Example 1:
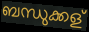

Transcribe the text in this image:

ബന്ധുക്കള്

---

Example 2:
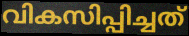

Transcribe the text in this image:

വികസിപ്പിച്ചത്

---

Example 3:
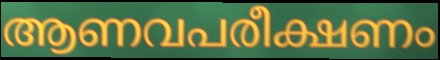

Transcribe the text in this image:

ആണവപരീക്ഷണം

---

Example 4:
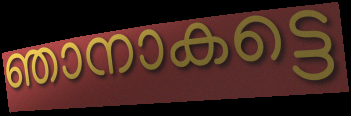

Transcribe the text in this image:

ഞാനാകട്ടെ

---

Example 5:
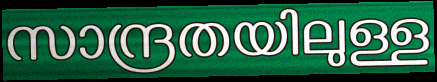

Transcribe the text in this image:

സാന്ദ്രതയിലുള്ള